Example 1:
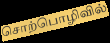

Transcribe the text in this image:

சொற்பொழிவில்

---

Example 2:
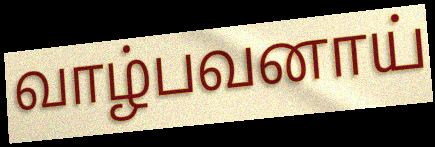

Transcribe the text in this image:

வாழ்பவனாய்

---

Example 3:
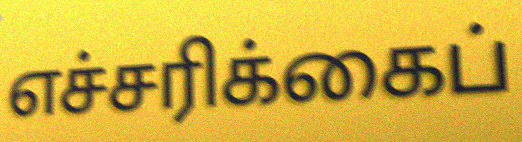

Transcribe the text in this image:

எச்சரிக்கைப்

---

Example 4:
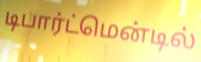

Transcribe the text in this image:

டிபார்ட்மென்டில்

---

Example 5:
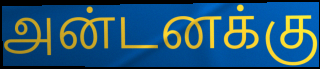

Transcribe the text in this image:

அன்டனக்கு